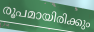
രൂപമായിരിക്കും